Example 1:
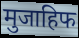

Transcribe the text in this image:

मुजाहिफ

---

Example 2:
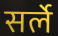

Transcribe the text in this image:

सर्ले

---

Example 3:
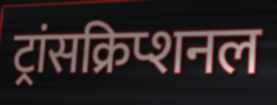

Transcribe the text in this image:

ट्रांसक्रिप्शनल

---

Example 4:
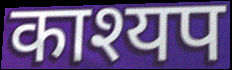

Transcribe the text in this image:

काश्यप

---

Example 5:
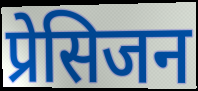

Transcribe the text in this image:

प्रेसिजन